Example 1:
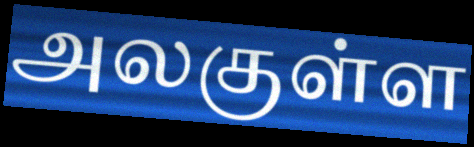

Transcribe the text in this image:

அலகுள்ள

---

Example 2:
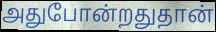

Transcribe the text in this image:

அதுபோன்றதுதான்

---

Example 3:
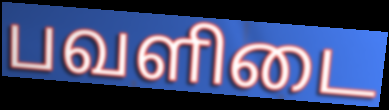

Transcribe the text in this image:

பவளிடை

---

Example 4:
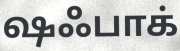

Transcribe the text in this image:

ஷஃபாக்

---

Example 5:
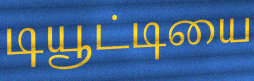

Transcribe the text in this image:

டியூட்டியை